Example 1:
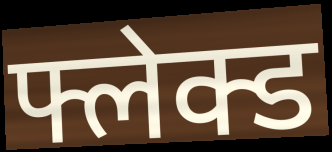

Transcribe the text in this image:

फ्लेक्ड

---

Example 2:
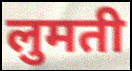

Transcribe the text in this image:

लुमती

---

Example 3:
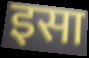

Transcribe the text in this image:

इसा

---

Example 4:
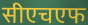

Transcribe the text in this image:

सीएचएफ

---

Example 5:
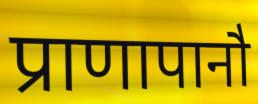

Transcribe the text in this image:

प्राणापानौ